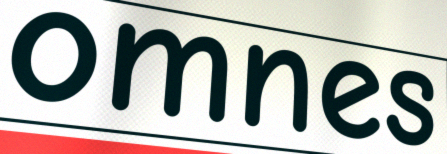
omnes